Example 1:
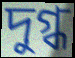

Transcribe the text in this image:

দুগ্ধ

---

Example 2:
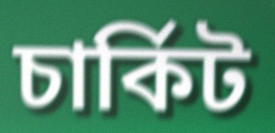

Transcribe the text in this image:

চাৰ্কিট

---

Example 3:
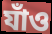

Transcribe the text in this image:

যাঁও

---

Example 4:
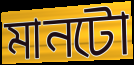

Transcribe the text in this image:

মানটো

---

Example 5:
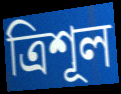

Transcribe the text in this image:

ত্ৰিশূল